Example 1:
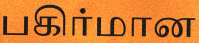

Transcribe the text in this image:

பகிர்மான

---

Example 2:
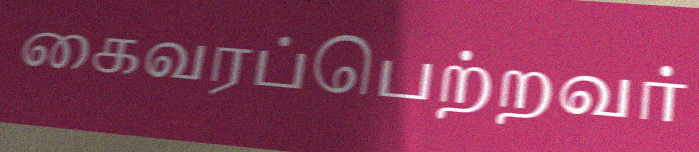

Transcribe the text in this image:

கைவரப்பெற்றவர்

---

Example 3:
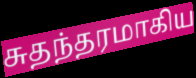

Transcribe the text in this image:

சுதந்தரமாகிய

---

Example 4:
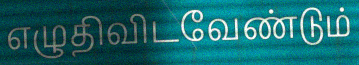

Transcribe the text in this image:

எழுதிவிடவேண்டும்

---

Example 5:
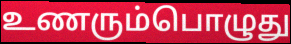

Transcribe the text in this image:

உணரும்பொழுது